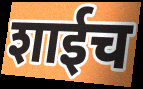
शाईच